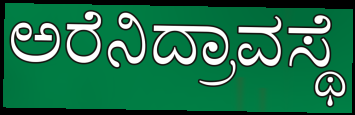
ಅರೆನಿದ್ರಾವಸ್ಥೆ